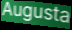
Augusta